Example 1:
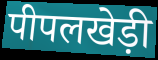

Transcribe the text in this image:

पीपलखेड़ी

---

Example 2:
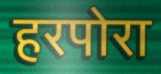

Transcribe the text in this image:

हरपोरा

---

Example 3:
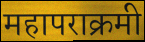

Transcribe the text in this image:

महापराक्रमी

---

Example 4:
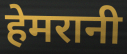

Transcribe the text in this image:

हेमरानी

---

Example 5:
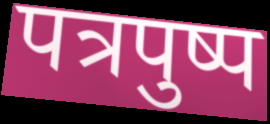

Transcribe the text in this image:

पत्रपुष्प